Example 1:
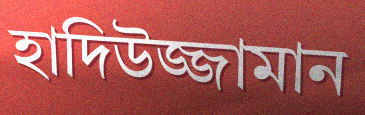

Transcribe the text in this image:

হাদিউজ্জামান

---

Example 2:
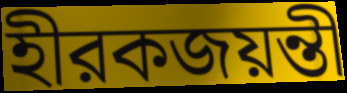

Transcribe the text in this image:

হীরকজয়ন্তী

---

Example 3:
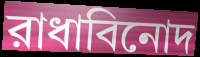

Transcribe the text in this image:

রাধাবিনোদ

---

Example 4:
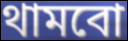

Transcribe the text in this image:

থামবো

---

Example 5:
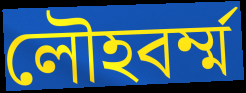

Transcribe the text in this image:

লৌহবর্ম্ম